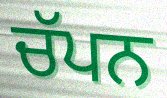
ਚੱਪਨ